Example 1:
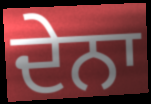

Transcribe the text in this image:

ਦੇਨਾ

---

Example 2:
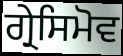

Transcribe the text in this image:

ਗ੍ਰੇਸਿਮੋਵ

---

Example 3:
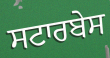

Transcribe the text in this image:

ਸਟਾਰਬੇਸ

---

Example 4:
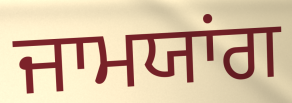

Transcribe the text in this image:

ਜਾਮਯਾਂਗ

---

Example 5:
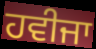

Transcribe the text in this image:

ਹਵੀਜਾ